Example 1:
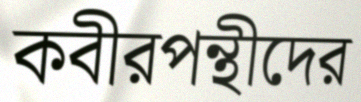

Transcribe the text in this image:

কবীরপন্থীদের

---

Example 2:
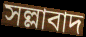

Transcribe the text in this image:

সল্লাবাদ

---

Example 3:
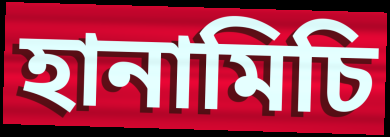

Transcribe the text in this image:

হানামিচি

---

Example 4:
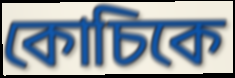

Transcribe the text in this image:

কোচিকে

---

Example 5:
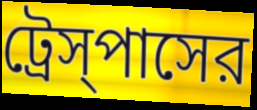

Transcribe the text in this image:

ট্রেস্‌পাসের